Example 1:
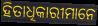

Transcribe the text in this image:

ହିତାଧିକାରୀମାନେ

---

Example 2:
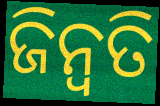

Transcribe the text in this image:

ଜିନ୍ୱତି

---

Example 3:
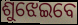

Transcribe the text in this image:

ଶୁଝେଇବେ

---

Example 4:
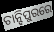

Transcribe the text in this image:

ଚାନ୍ଦିପୁରରେ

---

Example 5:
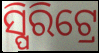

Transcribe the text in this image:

ସ୍ପିରିଟ୍ରେ